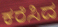
ಕರೆಸಿದ